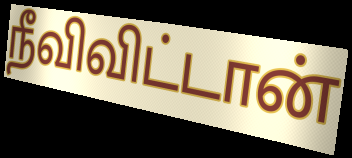
நீவிவிட்டான்